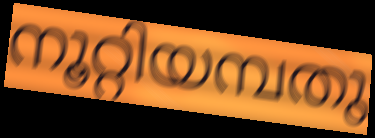
നൂറ്റിയമ്പതു